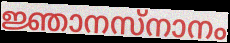
ജ്ഞാനസ്നാനം